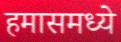
हमासमध्ये